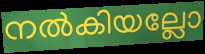
നൽകിയല്ലോ